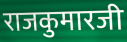
राजकुमारजी